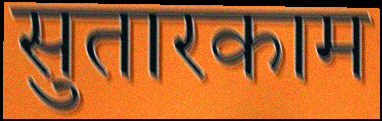
सुतारकाम